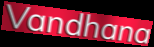
Vandhana